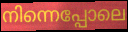
നിന്നെപ്പോലെ